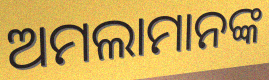
ଅମଲାମାନଙ୍କ